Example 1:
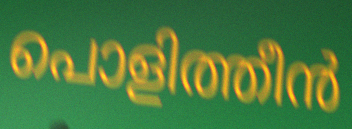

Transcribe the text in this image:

പൊളിത്തീൻ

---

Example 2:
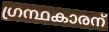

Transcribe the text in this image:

ഗ്രന്ഥകാരന്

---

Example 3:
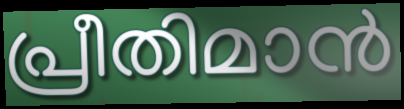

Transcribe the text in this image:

പ്രീതിമാൻ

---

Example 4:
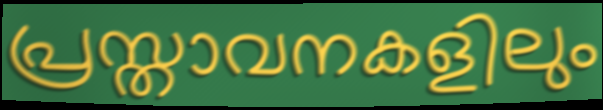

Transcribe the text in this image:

പ്രസ്താവനകളിലും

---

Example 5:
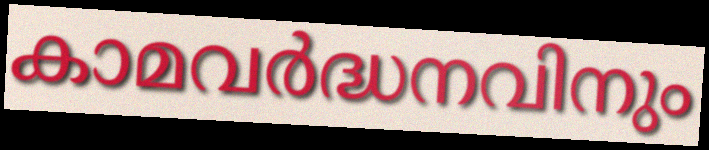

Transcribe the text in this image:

കാമവർദ്ധനവിനും